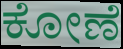
ಕೋಣೆ